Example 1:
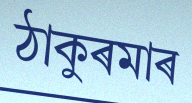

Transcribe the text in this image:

ঠাকুৰমাৰ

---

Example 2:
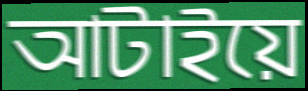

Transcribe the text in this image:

আটাইয়ে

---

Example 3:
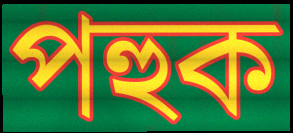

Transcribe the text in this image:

পহুক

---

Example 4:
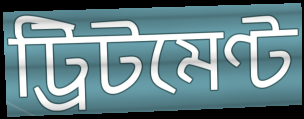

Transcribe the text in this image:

ট্ৰিটমেণ্ট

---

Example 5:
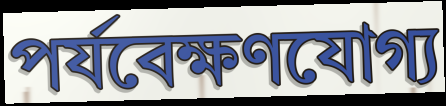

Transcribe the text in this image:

পৰ্যবেক্ষণযোগ্য